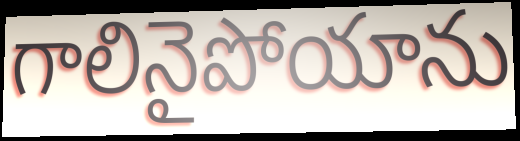
గాలినైపోయాను